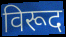
विरूद